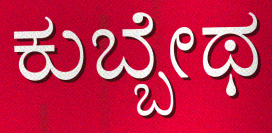
ಕುಬ್ಬೇಥ